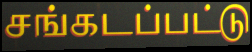
சங்கடப்பட்டு